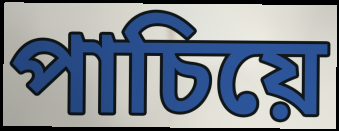
পাচিয়ে